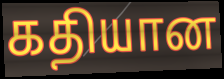
கதியான